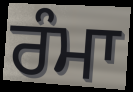
ਰੰਮਾ